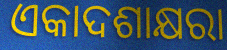
ଏକାଦଶାକ୍ଷରା